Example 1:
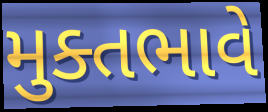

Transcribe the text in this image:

મુક્તભાવે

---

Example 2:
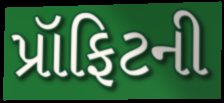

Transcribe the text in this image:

પ્રૉફિટની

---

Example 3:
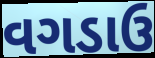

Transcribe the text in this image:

વગડાઉ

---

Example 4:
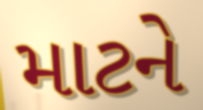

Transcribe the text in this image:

માટને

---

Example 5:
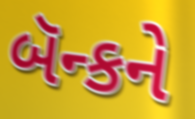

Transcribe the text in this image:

બૅન્કને